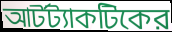
আর্টট্যাকটিকের